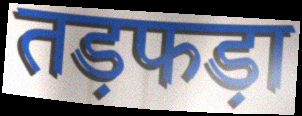
तड़फड़ा